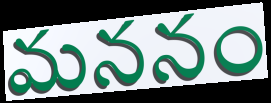
మననం